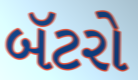
બૅટરો